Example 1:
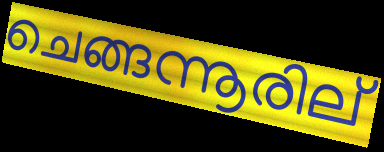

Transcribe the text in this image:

ചെങ്ങന്നൂരില്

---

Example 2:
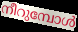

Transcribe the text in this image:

നീറുമ്പോൾ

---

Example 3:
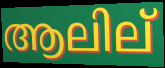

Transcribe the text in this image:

ആലില്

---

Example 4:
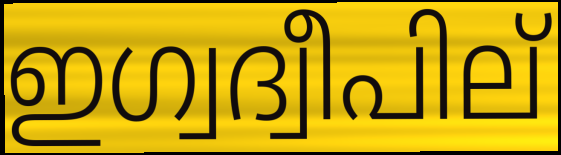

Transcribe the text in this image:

ഇഗ്വദ്വീപില്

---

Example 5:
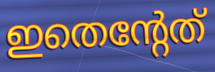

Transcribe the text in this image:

ഇതെന്റേത്